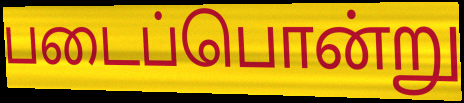
படைப்பொன்று